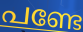
പണ്ടേ